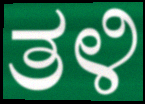
ತಳಿ